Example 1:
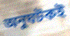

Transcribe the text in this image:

অনুঘটকই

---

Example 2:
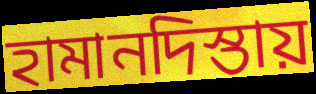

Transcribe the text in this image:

হামানদিস্তায়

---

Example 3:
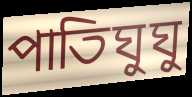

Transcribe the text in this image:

পাতিঘুঘু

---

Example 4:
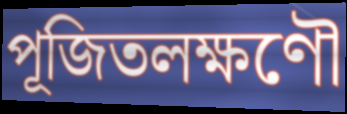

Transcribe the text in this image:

পূজিতলক্ষণৌ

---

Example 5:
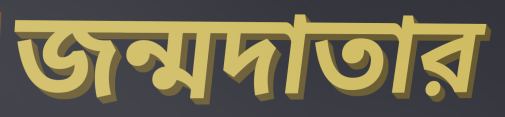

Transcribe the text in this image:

জন্মদাতার